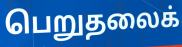
பெறுதலைக்